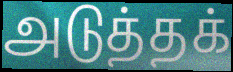
அடுத்தக்